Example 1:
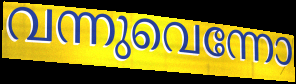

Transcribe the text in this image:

വന്നുവെന്നോ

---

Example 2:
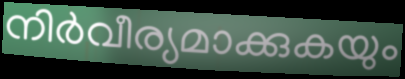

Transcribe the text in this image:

നിർവീര്യമാക്കുകയും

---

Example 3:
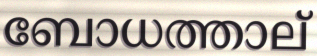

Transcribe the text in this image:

ബോധത്താല്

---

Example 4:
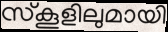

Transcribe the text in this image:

സ്കൂളിലുമായി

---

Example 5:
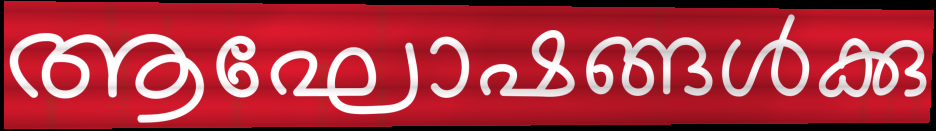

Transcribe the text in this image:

ആഘോഷങ്ങൾക്കു